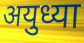
अयुध्या